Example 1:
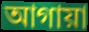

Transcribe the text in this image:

আগায়া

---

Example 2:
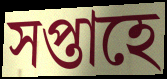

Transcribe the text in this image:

সপ্তাহে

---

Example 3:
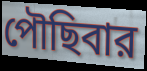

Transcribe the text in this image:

পৌছিবার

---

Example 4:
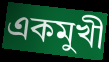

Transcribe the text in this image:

একমুখী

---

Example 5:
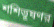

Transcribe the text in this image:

শশিভূষণর